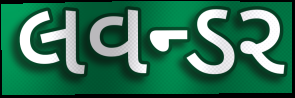
લવન્ડર